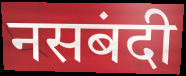
नसबंदी